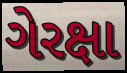
ગેરક્ષા